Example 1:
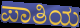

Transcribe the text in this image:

ಪಾತಿಯ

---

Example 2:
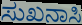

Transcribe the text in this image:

ಸುಖನಾಸಿ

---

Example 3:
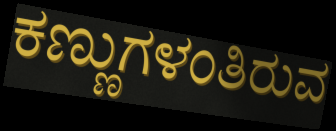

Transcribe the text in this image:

ಕಣ್ಣುಗಳಂತಿರುವ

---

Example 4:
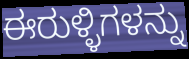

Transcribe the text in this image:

ಈರುಳ್ಳಿಗಳನ್ನು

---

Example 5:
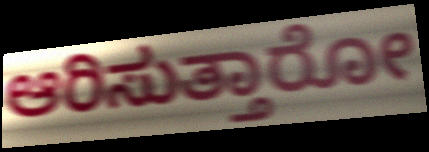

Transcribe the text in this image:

ಆರಿಸುತ್ತಾರೋ